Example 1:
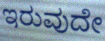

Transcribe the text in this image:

ಇರುವುದೇ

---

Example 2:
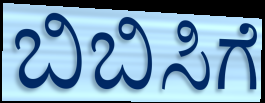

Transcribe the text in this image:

ಬಿಬಿಸಿಗೆ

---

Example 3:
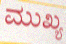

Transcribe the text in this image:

ಮುಖ್ಯ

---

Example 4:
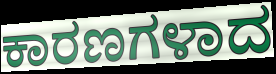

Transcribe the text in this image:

ಕಾರಣಗಳಾದ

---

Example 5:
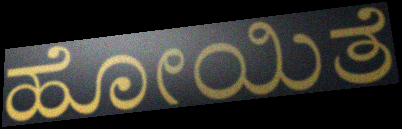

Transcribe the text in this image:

ಹೋಯಿತೆ